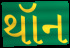
થૉન